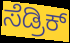
ಸೆಡ್ರಿಕ್